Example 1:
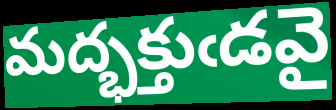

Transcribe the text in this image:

మద్భక్తుఁడవై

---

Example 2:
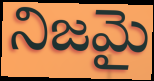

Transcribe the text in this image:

నిజమై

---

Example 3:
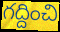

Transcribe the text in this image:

గద్దించి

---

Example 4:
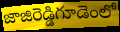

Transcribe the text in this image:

జాజిరెడ్డిగూడెంలో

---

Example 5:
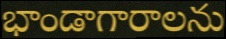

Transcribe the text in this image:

భాండాగారాలను